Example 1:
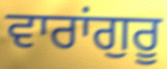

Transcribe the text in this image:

ਵਾਰਾਂਗੁਰੂ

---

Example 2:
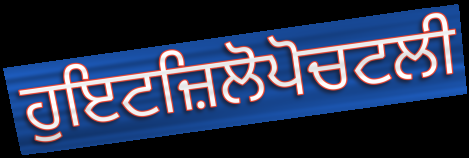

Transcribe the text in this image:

ਹੁਇਟਜ਼ਿਲੋਪੋਚਟਲੀ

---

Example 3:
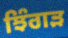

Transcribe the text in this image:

ਝਿੰਗੜ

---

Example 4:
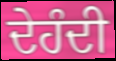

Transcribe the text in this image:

ਦੇਹੰਦੀ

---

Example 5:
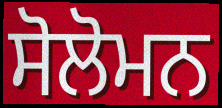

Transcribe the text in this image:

ਸੋਲੋਮਨ